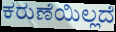
ಕರುಣೆಯಿಲ್ಲದೆ